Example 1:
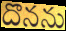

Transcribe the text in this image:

దొనను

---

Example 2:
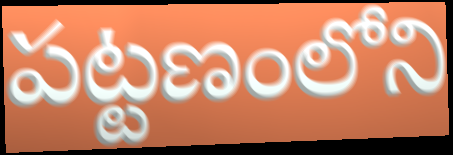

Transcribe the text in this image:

పట్టణంలోని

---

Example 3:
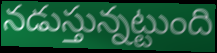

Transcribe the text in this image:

నడుస్తున్నట్టుంది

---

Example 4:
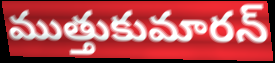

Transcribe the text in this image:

ముత్తుకుమారన్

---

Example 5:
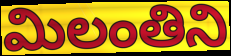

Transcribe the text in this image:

మిలంతిని